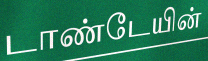
டாண்டேயின்